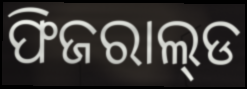
ଫିଜରାଲ୍‌ଡ